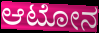
ಆಟೋನ